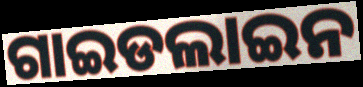
ଗାଇଡଲାଇନ